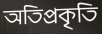
অতিপ্রকৃতি